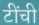
टींची